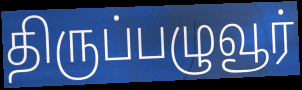
திருப்பழுவூர்